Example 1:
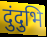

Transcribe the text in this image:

दुंदुभि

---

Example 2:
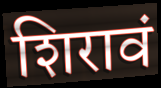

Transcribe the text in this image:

शिरावं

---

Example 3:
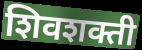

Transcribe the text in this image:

शिवशक्ती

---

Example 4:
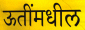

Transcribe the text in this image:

ऊतींमधील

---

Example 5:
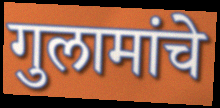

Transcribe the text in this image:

गुलामांचे